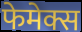
फेमेक्स